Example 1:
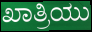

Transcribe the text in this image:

ಖಾತ್ರಿಯು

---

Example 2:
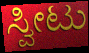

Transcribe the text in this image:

ಸ್ವೀಟು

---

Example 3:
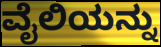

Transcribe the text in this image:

ವೈಲಿಯನ್ನು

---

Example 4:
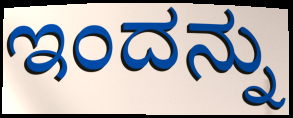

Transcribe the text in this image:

ಇಂದನ್ನು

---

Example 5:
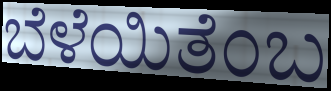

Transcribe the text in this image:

ಬೆಳೆಯಿತೆಂಬ